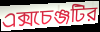
এক্সচেঞ্জটির